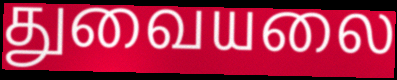
துவையலை